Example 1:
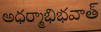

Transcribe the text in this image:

అధర్మాభిభవాత్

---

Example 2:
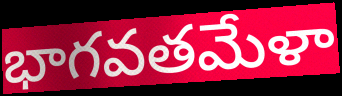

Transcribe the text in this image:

భాగవతమేళా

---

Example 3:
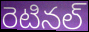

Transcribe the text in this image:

రెటినల్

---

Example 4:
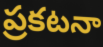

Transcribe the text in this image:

ప్రకటనా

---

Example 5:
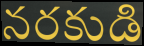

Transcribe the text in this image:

నరకుడి